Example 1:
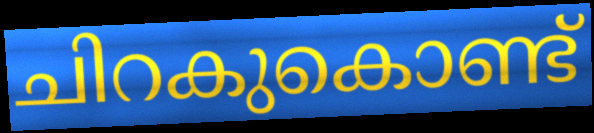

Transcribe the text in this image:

ചിറകുകൊണ്ട്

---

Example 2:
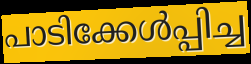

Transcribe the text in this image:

പാടിക്കേൾപ്പിച്ച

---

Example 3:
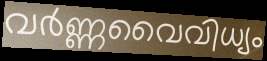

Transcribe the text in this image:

വർണ്ണവൈവിധ്യം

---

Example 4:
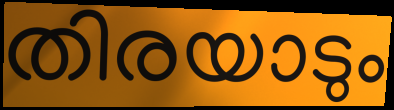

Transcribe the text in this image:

തിരയാടും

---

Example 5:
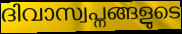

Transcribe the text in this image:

ദിവാസ്വപ്നങ്ങളുടെ